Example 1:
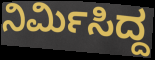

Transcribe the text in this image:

ನಿರ್ಮಿಸಿದ್ದ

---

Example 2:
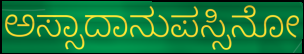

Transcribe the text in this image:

ಅಸ್ಸಾದಾನುಪಸ್ಸಿನೋ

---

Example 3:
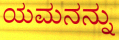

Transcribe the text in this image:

ಯಮನನ್ನು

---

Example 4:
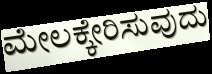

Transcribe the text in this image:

ಮೇಲಕ್ಕೇರಿಸುವುದು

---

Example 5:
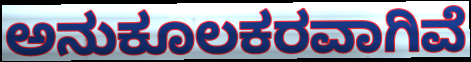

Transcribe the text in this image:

ಅನುಕೂಲಕರವಾಗಿವೆ